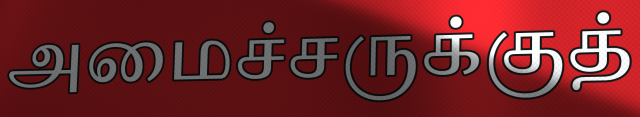
அமைச்சருக்குத்